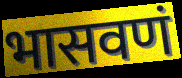
भासवणं